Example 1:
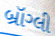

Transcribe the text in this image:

બ્રૉગ્લી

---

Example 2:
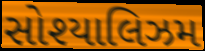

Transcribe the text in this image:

સોશ્યાલિઝમ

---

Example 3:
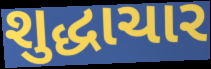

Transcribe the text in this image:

શુદ્ધાચાર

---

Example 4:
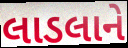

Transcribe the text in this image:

લાડલાને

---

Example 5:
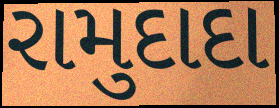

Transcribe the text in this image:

રામુદાદા